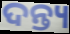
ଦନ୍ତ୍ୟ